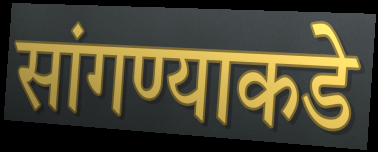
सांगण्याकडे